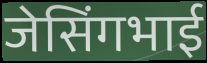
जेसिंगभाई